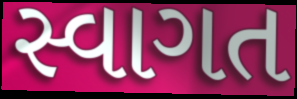
સ્વાગત